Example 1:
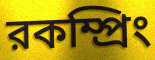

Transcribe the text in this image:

রকম্প্রিং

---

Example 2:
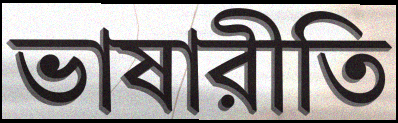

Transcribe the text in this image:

ভাষারীতি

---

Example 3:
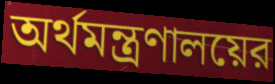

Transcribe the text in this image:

অর্থমন্ত্রণালয়ের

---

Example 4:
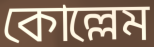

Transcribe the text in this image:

কোল্লেম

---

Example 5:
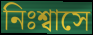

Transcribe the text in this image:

নিঃশ্বাসে